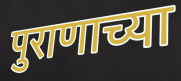
पुराणाच्या